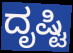
ದೃಷ್ಟಿ